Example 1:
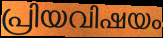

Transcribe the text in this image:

പ്രിയവിഷയം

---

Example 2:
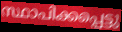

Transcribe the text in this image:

സ്ഥാപിക്കപ്പെട്ടു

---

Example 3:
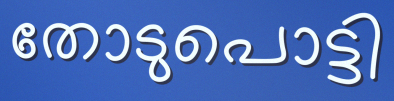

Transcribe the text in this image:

തോടുപൊട്ടി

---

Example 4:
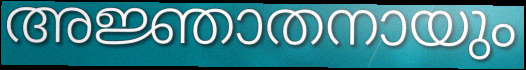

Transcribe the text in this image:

അജ്ഞാതനായും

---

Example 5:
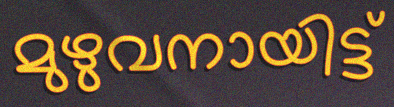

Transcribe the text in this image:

മുഴുവനായിട്ട്